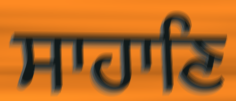
ਸਾਹਾਣਿ